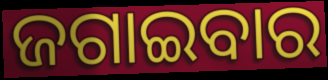
ଜଗାଇବାର